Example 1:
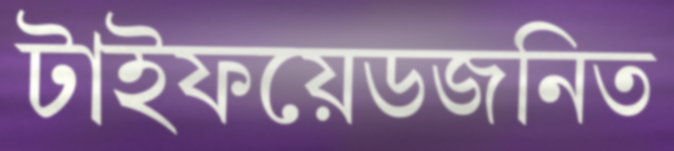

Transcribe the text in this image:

টাইফয়েডজনিত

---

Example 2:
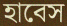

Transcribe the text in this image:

হাবেস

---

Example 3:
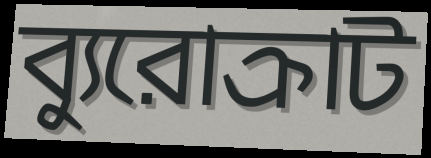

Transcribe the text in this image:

ব্যুরোক্রাট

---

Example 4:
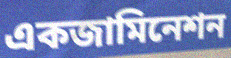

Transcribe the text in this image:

একজামিনেশন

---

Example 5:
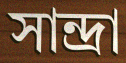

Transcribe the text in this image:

সান্দ্রা